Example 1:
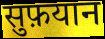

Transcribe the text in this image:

सुफ़यान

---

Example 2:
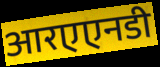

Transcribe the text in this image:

आरएएनडी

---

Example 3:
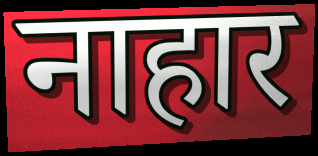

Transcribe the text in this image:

नाहार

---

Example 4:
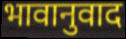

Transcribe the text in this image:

भावानुवाद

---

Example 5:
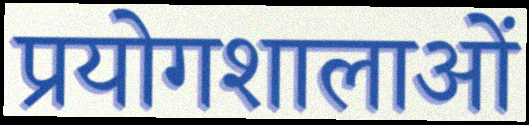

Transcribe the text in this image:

प्रयोगशालाओं